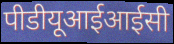
पीडीयूआईआईसी